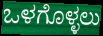
ಒಳಗೊಳ್ಳಲು